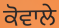
ਕੋਵਾਲੇ